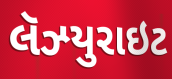
લૅઝ્યુરાઇટ